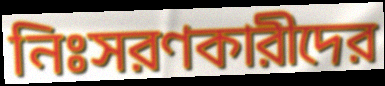
নিঃসরণকারীদের